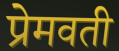
प्रेमवती